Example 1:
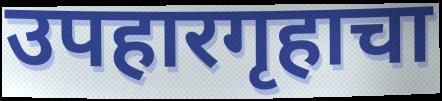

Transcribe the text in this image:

उपहारगृहाचा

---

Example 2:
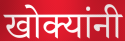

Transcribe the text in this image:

खोक्यांनी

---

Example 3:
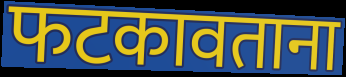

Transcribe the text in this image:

फटकावताना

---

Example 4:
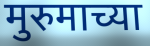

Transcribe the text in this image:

मुरुमाच्या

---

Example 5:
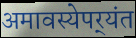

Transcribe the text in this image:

अमावस्येपर्यंत